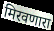
मिरवणारा